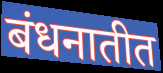
बंधनातीत